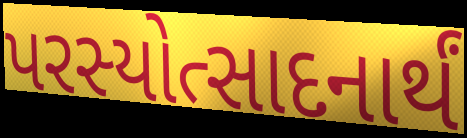
પરસ્યોત્સાદનાર્થં